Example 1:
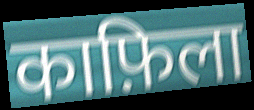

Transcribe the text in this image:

काफ़िला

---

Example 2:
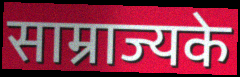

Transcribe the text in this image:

साम्राज्यके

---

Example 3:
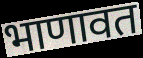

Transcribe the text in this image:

भाणावत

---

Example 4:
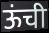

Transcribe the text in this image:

ऊंची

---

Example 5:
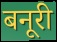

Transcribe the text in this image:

बनूरी